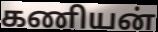
கணியன்